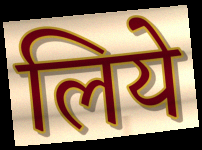
लिये